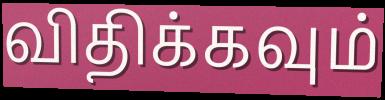
விதிக்கவும்